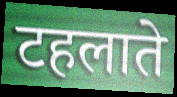
टहलाते